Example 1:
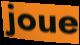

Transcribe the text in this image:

joue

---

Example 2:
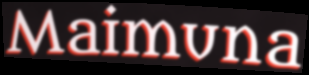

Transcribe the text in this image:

Maimuna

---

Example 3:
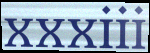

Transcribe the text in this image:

xxxiii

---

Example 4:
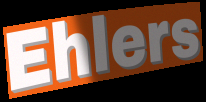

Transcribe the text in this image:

Ehlers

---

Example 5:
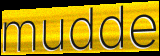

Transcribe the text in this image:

mudde